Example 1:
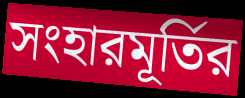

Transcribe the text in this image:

সংহারমূর্তির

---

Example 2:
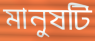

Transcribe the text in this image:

মানুষটি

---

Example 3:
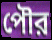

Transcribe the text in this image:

পৌর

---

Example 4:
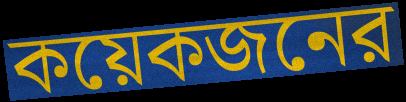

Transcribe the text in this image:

কয়েকজনের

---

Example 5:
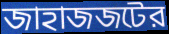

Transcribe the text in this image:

জাহাজজটের